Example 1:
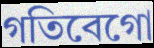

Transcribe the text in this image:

গতিবেগো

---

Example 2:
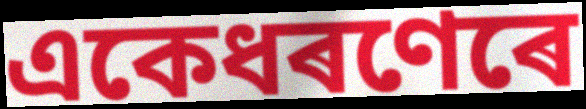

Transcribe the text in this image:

একেধৰণেৰে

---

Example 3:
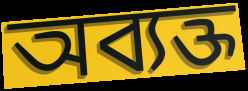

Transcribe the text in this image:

অব্যক্ত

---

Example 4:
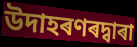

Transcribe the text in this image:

উদাহৰণৰদ্বাৰা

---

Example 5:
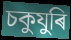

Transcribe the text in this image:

চকুযুৰি